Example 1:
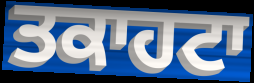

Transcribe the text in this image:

ਤਕਾਹਟਾ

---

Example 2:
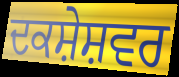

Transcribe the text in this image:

ਦਕਸ਼ੇਸ਼ਵਰ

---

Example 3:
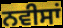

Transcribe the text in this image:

ਨਵੀਸਾਂ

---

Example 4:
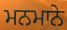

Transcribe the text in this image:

ਮਨਮਾਨੇ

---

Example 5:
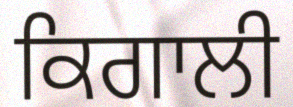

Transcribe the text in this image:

ਕਿਗਾਲੀ